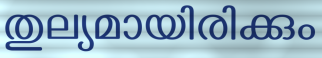
തുല്യമായിരിക്കും